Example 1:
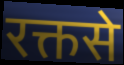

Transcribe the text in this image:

रक्तसे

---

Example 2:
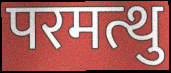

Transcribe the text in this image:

परमत्थु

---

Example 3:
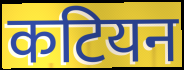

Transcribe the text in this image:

कटियन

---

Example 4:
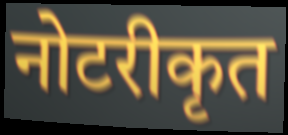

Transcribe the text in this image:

नोटरीकृत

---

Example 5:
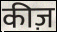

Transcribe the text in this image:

कीज़